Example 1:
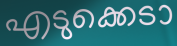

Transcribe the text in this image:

എടുക്കെടാ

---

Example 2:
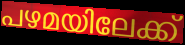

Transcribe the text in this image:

പഴമയിലേക്ക്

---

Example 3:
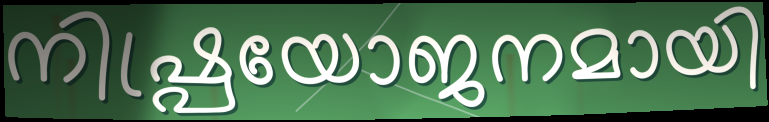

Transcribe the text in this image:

നിഷ്പ്രയോജനമായി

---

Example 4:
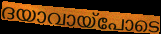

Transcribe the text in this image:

ദയാവായ്പോടെ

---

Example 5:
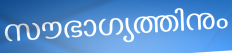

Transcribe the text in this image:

സൗഭാഗ്യത്തിനും